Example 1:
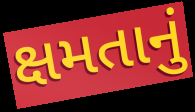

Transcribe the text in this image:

ક્ષમતાનું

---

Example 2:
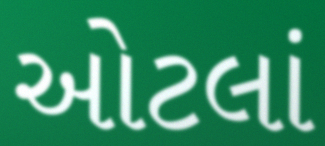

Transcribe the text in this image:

ઓટલાં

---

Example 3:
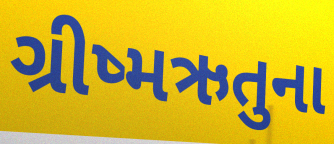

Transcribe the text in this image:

ગ્રીષ્મઋતુના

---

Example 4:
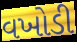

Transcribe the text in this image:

વખોડી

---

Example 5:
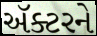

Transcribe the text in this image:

ઍક્ટરને